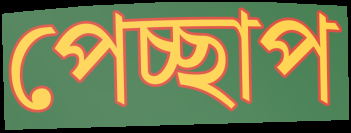
পেচ্ছাপ